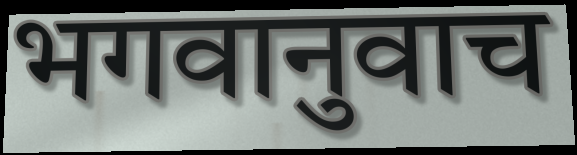
भगवानुवाच